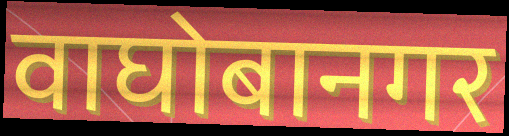
वाघोबानगर